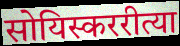
सोयिस्कररीत्या